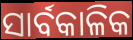
ସାର୍ବକାଳିକ